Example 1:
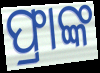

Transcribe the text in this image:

ଫ୍ରାଙ୍କ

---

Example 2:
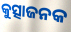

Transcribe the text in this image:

କୁତ୍ସାଜନକ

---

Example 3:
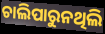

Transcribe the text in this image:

ଚାଲିପାରୁନଥିଲି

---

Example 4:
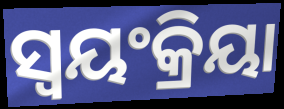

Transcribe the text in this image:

ସ୍ବୟଂକ୍ରିୟା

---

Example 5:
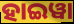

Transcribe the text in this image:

ହାଇୱା